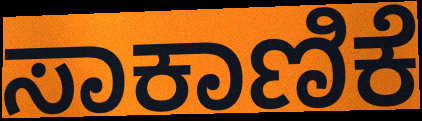
ಸಾಕಾಣಿಕೆ